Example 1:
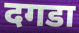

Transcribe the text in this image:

दगडा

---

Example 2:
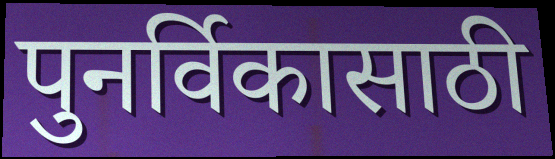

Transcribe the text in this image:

पुनर्विकासाठी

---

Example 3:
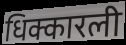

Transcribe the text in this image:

धिक्कारली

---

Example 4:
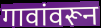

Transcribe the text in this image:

गावांवरून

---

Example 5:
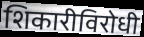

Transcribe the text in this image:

शिकारीविरोधी